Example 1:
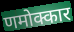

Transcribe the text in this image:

णमोक्कार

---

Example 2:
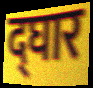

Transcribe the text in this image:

द्घार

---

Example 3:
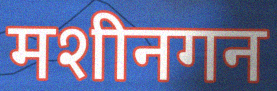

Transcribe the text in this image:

मशीनगन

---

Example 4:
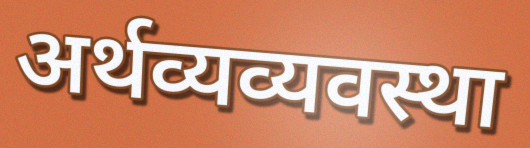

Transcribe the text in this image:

अर्थव्यव्यवस्था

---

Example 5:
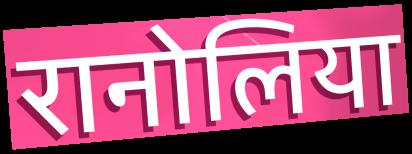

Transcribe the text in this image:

रानोलिया